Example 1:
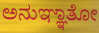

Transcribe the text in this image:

ಅನುಞ್ಞಾತೋ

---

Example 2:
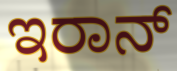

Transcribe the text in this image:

ಇರಾನ್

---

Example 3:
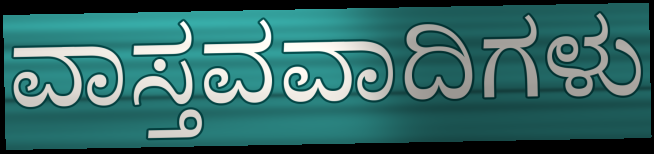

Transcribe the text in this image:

ವಾಸ್ತವವಾದಿಗಳು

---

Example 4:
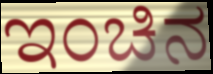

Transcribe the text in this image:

ಇಂಚಿನ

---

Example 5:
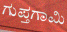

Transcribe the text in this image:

ಗುಪ್ತಗಾಮಿ